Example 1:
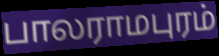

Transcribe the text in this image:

பாலராமபுரம்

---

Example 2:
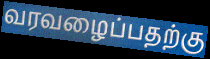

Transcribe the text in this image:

வரவழைப்பதற்கு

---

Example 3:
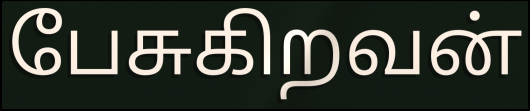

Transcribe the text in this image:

பேசுகிறவன்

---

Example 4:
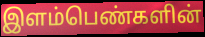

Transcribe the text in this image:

இளம்பெண்களின்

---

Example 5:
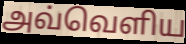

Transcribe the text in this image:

அவ்வெளிய